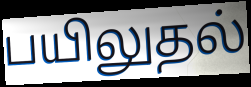
பயிலுதல்